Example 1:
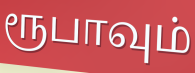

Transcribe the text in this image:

ரூபாவும்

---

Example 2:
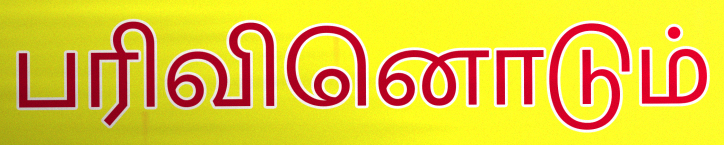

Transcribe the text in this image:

பரிவினொடும்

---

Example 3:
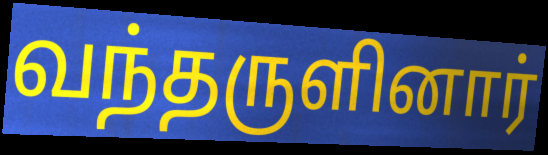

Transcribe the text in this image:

வந்தருளினார்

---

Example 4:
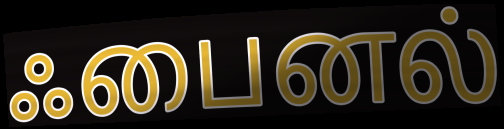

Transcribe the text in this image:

ஃபைனல்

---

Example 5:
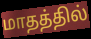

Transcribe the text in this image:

மாதத்தில்